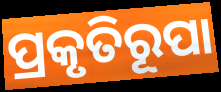
ପ୍ରକୃତିରୂପା